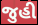
જુહી